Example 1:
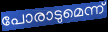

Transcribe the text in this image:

പോരാടുമെന്ന്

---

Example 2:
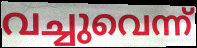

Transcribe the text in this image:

വച്ചുവെന്ന്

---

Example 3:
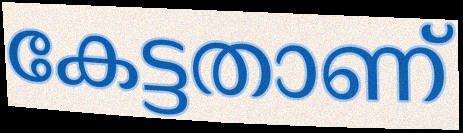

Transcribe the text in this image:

കേട്ടതാണ്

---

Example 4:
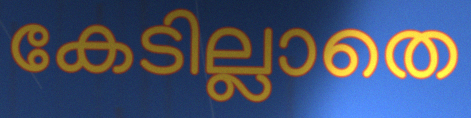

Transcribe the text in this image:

കേടില്ലാതെ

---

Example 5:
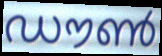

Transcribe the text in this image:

ഡൗൺ